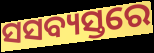
ସସବ୍ୟସ୍ତରେ